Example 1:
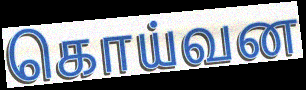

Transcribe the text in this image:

கொய்வன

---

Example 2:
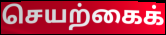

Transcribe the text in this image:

செயற்கைக்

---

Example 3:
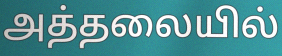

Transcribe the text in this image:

அத்தலையில்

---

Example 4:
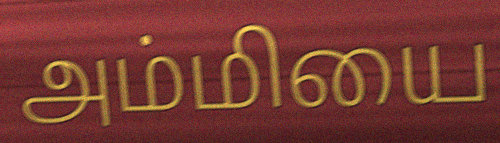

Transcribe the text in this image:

அம்மியை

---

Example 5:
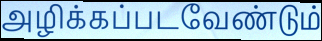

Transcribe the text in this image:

அழிக்கப்படவேண்டும்